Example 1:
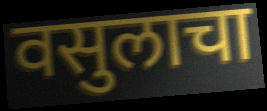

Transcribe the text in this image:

वसुलाचा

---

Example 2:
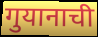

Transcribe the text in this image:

गुयानाची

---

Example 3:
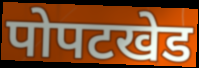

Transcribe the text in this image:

पोपटखेड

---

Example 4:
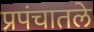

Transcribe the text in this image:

प्रपंचातले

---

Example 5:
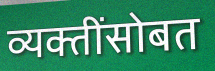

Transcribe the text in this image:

व्यक्‍तींसोबत